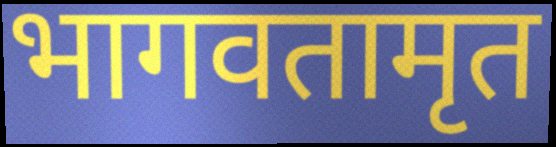
भागवतामृत